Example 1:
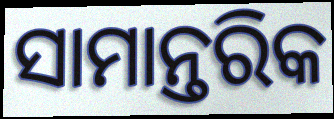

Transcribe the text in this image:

ସାମାନ୍ତରିକ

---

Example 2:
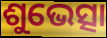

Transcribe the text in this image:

ଶୁଭେତ୍ସା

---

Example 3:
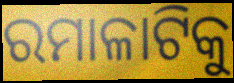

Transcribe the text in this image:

ରମାଳାଟିକୁ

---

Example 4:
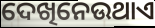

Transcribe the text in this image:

ଦେଖିନେଉଥାଏ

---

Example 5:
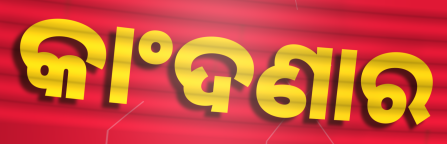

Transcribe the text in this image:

କାଂଦଣାର